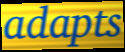
adapts